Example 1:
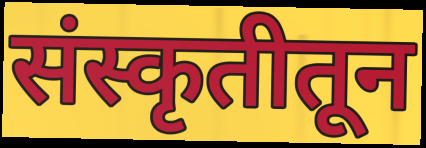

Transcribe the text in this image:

संस्कृतीतून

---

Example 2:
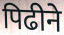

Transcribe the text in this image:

पिढीने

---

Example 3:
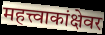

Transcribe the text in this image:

महत्त्वाकांक्षेवर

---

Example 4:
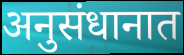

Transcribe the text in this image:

अनुसंधानात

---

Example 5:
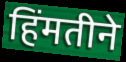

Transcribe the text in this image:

हिंमतीने